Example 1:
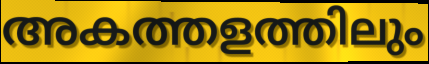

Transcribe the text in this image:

അകത്തളത്തിലും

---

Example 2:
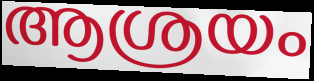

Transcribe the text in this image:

ആശ്രയം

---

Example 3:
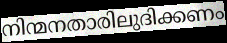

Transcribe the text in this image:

നിന്മനതാരിലുദിക്കണം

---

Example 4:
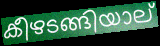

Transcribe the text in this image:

കീഴടങ്ങിയാല്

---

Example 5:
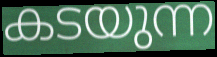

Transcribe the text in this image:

കടയുന്ന